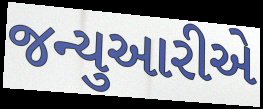
જન્યુઆરીએ